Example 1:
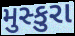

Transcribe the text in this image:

મુસ્કુરા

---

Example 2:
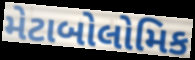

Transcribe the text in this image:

મેટાબોલોમિક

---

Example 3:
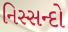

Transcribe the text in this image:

નિસ્સન્દો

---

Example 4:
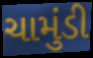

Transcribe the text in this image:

ચામુંડી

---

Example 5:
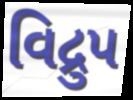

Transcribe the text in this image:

વિદ્રુપ